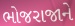
ભોજરાજાને